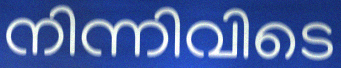
നിന്നിവിടെ